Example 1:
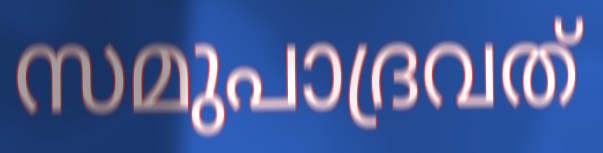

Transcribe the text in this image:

സമുപാദ്രവത്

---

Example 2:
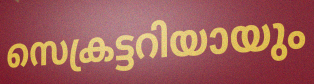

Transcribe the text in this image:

സെക്രട്ടറിയായും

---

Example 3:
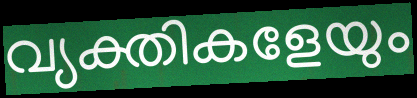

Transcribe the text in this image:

വ്യക്തികളേയും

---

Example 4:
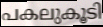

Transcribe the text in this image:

പകലുകൂടി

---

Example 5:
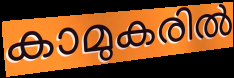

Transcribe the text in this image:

കാമുകരിൽ